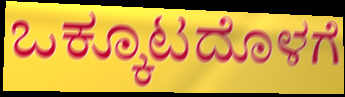
ಒಕ್ಕೂಟದೊಳಗೆ